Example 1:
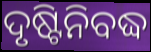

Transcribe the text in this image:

ଦୃଷ୍ଟିନିବଦ୍ଧ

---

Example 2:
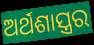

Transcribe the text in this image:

ଅର୍ଥଶାସ୍ତ୍ରର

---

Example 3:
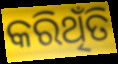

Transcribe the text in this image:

କରିଥିଁତି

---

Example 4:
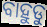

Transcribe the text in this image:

ବାହୁଡୁ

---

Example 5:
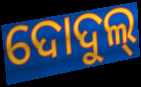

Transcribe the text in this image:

ଦୋଦୁଲ୍